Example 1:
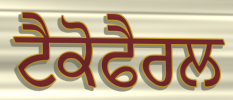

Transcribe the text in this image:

ਟੈਕੋਫੈਰਲ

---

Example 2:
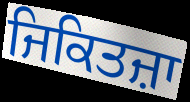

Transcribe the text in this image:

ਜਿਕਿਤਜ਼ਾ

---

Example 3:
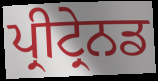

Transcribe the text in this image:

ਪ੍ਰੀਟ੍ਰੇਨਡ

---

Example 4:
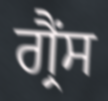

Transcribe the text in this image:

ਗ੍ਰੈਂਸ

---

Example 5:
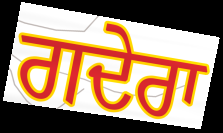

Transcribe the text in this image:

ਗਦੇਰਾ